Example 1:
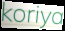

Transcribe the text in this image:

koriya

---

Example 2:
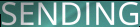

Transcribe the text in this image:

SENDING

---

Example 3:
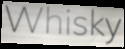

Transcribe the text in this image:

Whisky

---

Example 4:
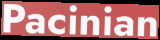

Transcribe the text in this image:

Pacinian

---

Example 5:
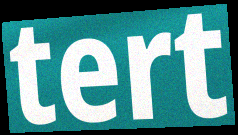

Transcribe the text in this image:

tert